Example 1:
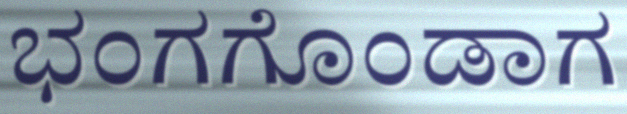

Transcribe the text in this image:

ಭಂಗಗೊಂಡಾಗ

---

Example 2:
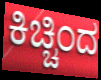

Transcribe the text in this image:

ಕಿಚ್ಚಿಂದ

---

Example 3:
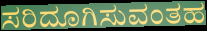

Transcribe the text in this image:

ಸರಿದೂಗಿಸುವಂತಹ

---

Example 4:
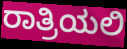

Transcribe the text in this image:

ರಾತ್ರಿಯಲಿ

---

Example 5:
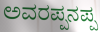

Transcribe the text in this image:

ಅವರಪ್ಪನಪ್ಪ